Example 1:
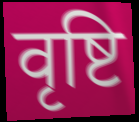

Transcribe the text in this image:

वृष्टि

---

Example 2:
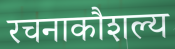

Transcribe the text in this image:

रचनाकौशल्य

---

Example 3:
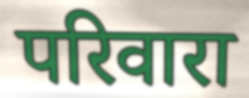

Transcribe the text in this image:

परिवारा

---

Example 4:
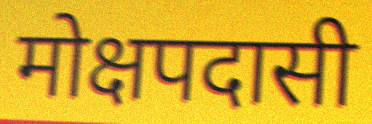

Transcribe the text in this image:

मोक्षपदासी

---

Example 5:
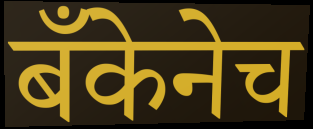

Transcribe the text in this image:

बँकेनेच